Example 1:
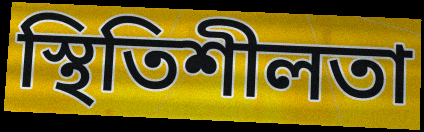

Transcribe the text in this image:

স্থিতিশীলতা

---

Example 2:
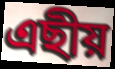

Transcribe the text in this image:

এছীয়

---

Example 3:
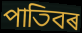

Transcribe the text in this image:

পাতিবৰ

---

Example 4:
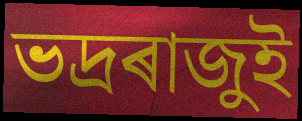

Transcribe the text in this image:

ভদ্ৰৰাজুই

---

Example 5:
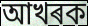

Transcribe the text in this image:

আখৰক